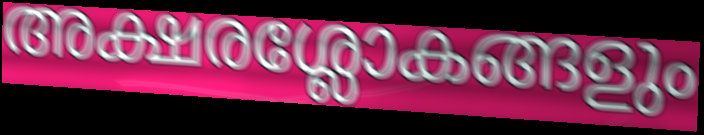
അക്ഷരശ്ലോകങ്ങളും